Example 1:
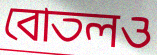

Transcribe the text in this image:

বোতলও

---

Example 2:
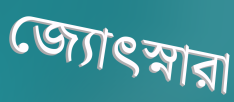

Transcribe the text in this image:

জ্যোৎস্নারা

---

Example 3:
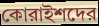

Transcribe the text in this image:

কোরাইশদের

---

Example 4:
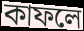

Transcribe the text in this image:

কাফলে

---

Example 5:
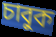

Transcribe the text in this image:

চাবুক